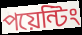
পয়েন্টিং